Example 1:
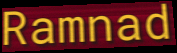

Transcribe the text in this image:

Ramnad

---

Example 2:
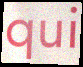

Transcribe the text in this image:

qui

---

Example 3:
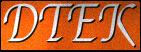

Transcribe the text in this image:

DTEK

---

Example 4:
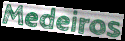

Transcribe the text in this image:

Medeiros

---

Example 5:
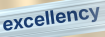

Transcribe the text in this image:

excellency